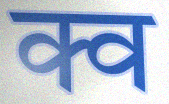
क्व